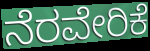
ನೆರವೇರಿಕೆ